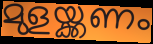
മുളയ്ക്കണം